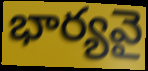
భార్యవై